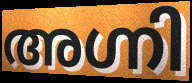
അഗ്നി